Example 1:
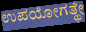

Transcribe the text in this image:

ಉಪಯೋಗತ್ಥೇ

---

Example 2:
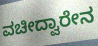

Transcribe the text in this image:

ವಚೀದ್ವಾರೇನ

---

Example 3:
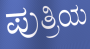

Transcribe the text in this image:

ಪುತ್ರಿಯ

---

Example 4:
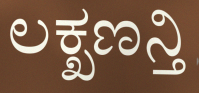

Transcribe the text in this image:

ಲಕ್ಖಣನ್ತಿ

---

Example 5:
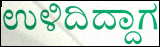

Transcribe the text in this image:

ಉಳಿದಿದ್ದಾಗ